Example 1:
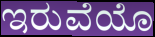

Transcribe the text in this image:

ಇರುವೆಯೊ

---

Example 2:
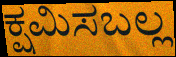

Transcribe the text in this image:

ಕ್ಷಮಿಸಬಲ್ಲ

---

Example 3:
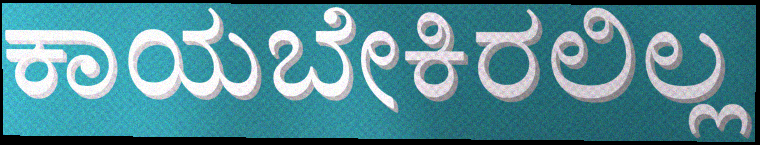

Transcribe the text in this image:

ಕಾಯಬೇಕಿರಲಿಲ್ಲ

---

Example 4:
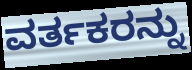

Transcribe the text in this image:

ವರ್ತಕರನ್ನು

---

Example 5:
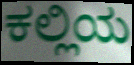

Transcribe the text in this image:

ಕಲ್ಲಿಯ